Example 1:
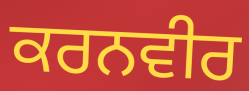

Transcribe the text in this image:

ਕਰਨਵੀਰ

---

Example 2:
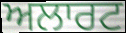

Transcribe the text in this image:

ਅਲਾਰਟ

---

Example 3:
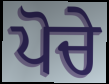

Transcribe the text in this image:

ਪੋਚੇ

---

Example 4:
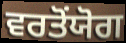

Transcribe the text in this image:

ਵਰਤੋਂਯੋਗ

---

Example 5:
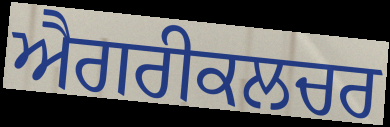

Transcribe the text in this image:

ਐਗਰੀਕਲਚਰ